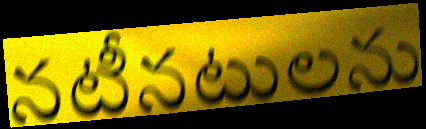
నటీనటులను